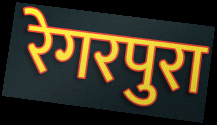
रेगरपुरा